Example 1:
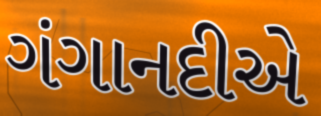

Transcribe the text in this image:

ગંગાનદીએ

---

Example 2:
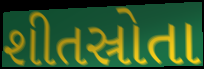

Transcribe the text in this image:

શીતસ્રોતા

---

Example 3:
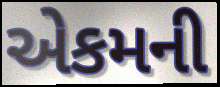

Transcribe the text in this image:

એકમની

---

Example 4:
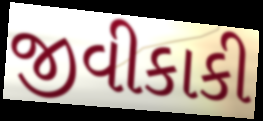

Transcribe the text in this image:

જીવીકાકી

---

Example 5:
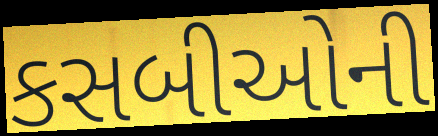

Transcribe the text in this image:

કસબીઓની